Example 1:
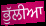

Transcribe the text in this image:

ਭੁੱਲੀਆ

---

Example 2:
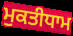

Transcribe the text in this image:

ਮੁਕਤੀਧਾਮ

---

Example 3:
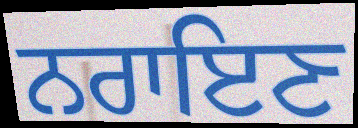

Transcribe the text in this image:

ਨਰਾਇਣ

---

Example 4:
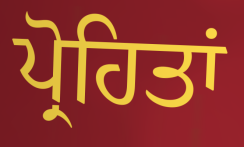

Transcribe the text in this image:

ਪ੍ਰੋਹਿਤਾਂ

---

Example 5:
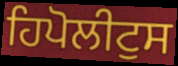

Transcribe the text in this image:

ਹਿਪੋਲੀਟੁਸ